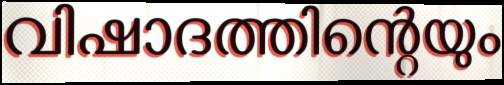
വിഷാദത്തിന്റെയും